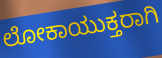
ಲೋಕಾಯುಕ್ತರಾಗಿ